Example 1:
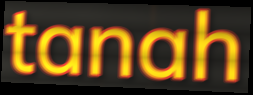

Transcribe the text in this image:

tanah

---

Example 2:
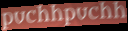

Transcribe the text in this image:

puchhpuchh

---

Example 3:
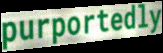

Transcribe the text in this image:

purportedly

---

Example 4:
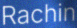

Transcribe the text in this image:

Rachin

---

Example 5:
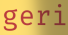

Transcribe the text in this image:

geri